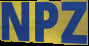
NPZ